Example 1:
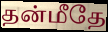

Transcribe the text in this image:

தன்மீதே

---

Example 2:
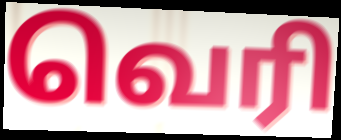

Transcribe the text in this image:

வெரி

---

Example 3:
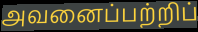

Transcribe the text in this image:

அவனைப்பற்றிப்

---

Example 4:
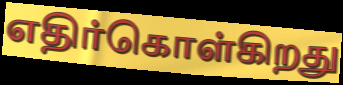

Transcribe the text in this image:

எதிர்கொள்கிறது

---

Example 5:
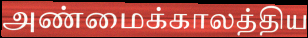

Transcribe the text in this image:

அண்மைக்காலத்திய